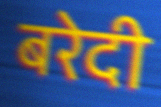
बरेदी